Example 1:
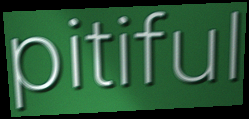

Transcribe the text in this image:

pitiful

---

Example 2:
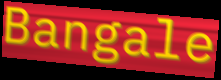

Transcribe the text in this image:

Bangale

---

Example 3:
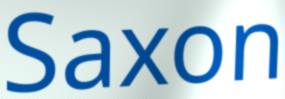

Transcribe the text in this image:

Saxon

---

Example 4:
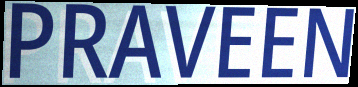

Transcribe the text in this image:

PRAVEEN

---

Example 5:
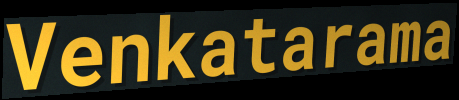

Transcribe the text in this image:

Venkatarama